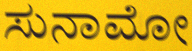
ಸುನಾಮೋ